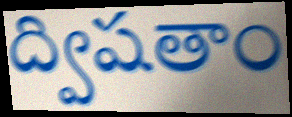
ద్విషతాం